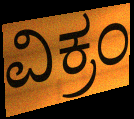
ವಿಕ್ರಂ